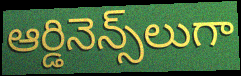
ఆర్డినెన్స్‌లుగా